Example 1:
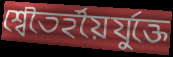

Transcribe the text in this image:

শ্বেতৈর্হয়ৈর্যুক্তে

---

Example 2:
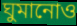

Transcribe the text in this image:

ঘুমানোও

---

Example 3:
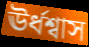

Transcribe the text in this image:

ঊর্ধশ্বাস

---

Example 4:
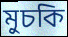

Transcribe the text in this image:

মুচকি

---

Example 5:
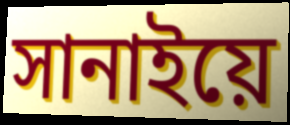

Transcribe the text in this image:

সানাইয়ে